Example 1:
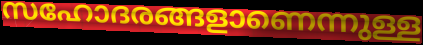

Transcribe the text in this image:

സഹോദരങ്ങളാണെന്നുള്ള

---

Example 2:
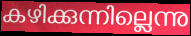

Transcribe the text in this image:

കഴിക്കുന്നില്ലെന്നു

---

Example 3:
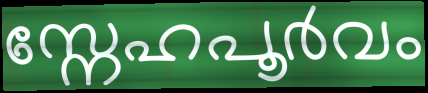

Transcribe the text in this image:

സ്നേഹപൂർവം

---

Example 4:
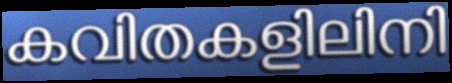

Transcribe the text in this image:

കവിതകളിലിനി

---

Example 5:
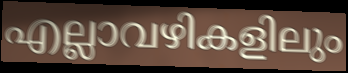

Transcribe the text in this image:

എല്ലാവഴികളിലും